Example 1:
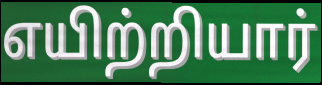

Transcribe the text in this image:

எயிற்றியார்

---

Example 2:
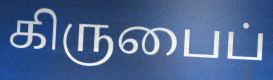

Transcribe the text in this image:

கிருபைப்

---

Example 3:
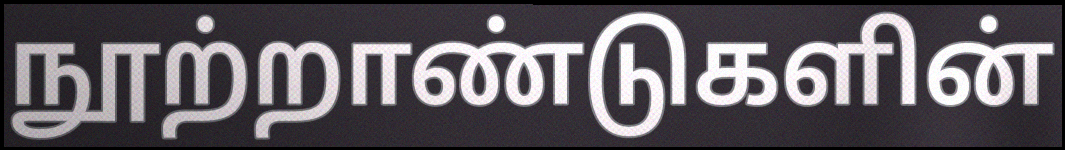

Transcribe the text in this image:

நூற்றாண்டுகளின்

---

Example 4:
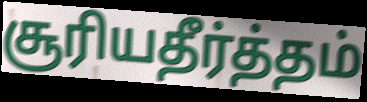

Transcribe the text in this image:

சூரியதீர்த்தம்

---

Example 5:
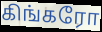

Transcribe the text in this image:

கிங்கரோ